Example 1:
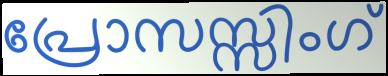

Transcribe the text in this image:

പ്രോസസ്സിംഗ്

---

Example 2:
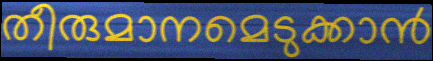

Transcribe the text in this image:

തീരുമാനമെടുക്കാൻ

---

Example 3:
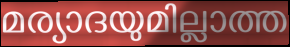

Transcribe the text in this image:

മര്യാദയുമില്ലാത്ത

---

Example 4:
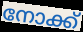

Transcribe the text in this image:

നോക്ക്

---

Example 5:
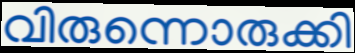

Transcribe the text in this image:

വിരുന്നൊരുക്കി